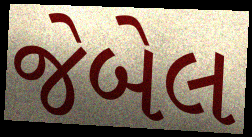
જેબેલ